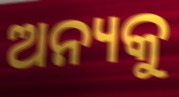
ଅନ୍ୟକୁ